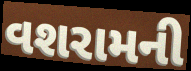
વશરામની